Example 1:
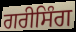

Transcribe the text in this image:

ਗਰੀਸਿੰਗ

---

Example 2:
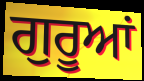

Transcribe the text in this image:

ਗੁਰੂਆਂ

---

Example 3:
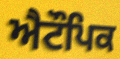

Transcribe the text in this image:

ਐਟੌਪਿਕ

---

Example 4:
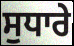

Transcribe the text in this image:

ਸੁਧਾਰੇ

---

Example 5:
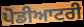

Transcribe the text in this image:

ਪੋਡੀਆਟਰੀ